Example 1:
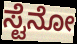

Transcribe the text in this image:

ಸ್ಟೆನೋ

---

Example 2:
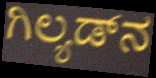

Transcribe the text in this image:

ಗಿಲ್ಯಡ್‌ನ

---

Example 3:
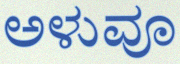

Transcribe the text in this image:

ಅಳುವೂ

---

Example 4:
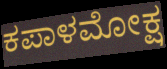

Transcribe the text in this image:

ಕಪಾಳಮೋಕ್ಷ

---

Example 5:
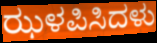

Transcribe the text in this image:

ಝಳಪಿಸಿದಳು